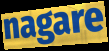
nagare